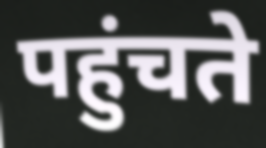
पहुंचते